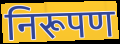
निरूपण